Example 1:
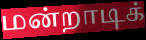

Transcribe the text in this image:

மன்றாடிக்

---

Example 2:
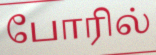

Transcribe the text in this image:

போரில்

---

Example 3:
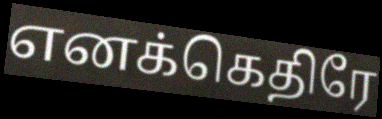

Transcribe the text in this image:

எனக்கெதிரே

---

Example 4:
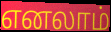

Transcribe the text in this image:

எனலாம்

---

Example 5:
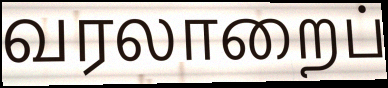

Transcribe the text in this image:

வரலாறைப்